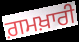
ਗ਼ਮਖ਼ਾਰੀ